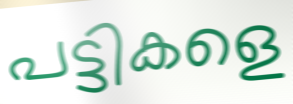
പട്ടികളെ